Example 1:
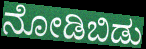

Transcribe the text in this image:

ನೋಡಿಬಿಡು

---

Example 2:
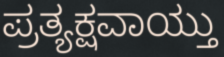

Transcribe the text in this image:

ಪ್ರತ್ಯಕ್ಷವಾಯ್ತು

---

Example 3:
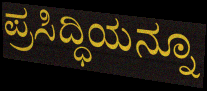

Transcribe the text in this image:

ಪ್ರಸಿದ್ಧಿಯನ್ನೂ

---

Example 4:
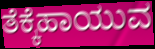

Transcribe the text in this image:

ತೆಕ್ಕೆಹಾಯುವ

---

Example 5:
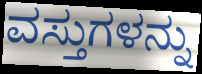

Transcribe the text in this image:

ವಸ್ತುಗಳನ್ನು